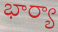
భార్యా